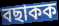
বছাকক